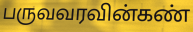
பருவவரவின்கண்